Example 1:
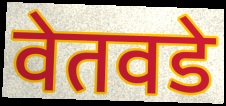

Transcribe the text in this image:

वेतवडे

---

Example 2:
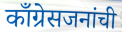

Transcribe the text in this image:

काँग्रेसजनांची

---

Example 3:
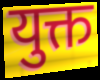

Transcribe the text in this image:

युक्त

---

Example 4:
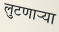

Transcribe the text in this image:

लुटणाऱ्या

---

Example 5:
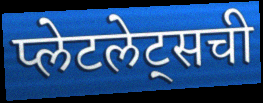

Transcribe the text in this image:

प्लेटलेट्‌सची